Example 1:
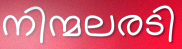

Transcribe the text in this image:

നിന്മലരടി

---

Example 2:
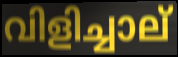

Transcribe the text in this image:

വിളിച്ചാല്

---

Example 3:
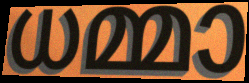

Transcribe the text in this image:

ധമ്മാ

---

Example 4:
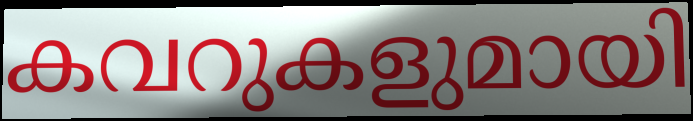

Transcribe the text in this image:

കവറുകളുമായി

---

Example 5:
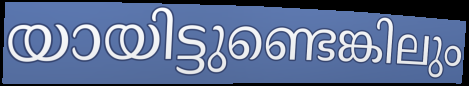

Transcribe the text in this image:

യായിട്ടുണ്ടെങ്കിലും